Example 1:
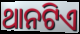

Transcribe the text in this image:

ଥାନଟିଏ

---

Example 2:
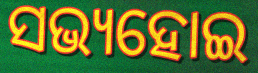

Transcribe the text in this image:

ସଭ୍ୟହୋଇ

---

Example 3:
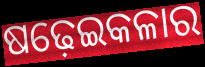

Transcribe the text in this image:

ଷଢ଼େଇକଳାର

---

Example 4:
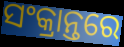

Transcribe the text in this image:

ସଂକ୍ରାନ୍ତରେ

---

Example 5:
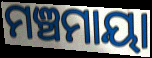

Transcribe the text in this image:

ମଞ୍ଚମାୟା